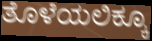
ತೊಳೆಯಲಿಕ್ಕೂ